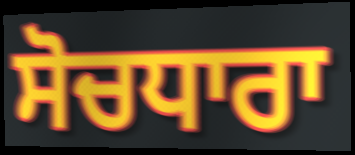
ਸੋਚਧਾਰਾ